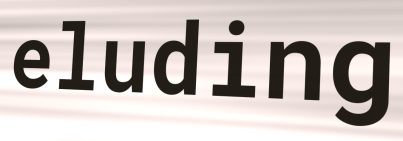
eluding